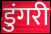
डुंगरी